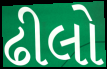
ઢીલો